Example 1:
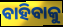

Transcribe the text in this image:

ବାହିବାକୁ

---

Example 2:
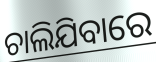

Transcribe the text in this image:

ଚାଲିଯିବାରେ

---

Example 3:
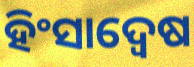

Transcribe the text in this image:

ହିଂସାଦ୍ୱେଷ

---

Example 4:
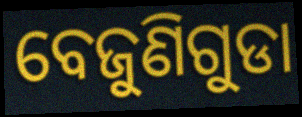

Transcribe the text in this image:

ବେଜୁଣିଗୁଡା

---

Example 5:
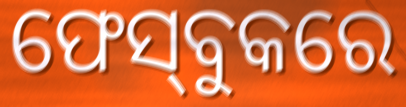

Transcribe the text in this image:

ଫେସ୍‌ବୁକରେ